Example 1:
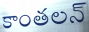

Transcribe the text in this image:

కాంతలన్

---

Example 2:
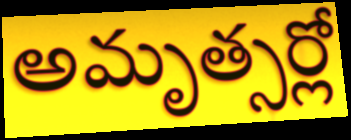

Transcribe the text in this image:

అమృత్సర్లో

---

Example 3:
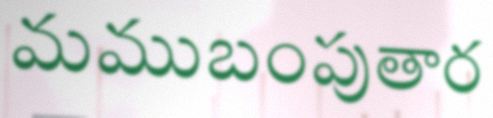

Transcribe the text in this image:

మముబంపుతార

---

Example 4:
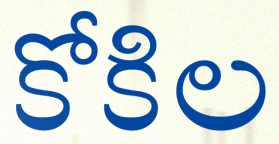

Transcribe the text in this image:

కోకిల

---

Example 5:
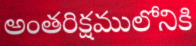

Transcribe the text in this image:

అంతరిక్షములోనికి